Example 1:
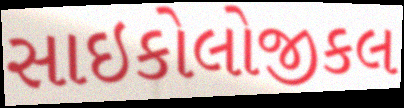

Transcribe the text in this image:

સાઇકોલોજીકલ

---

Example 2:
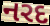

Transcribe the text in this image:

નરદ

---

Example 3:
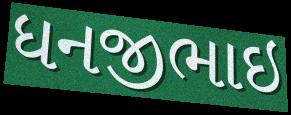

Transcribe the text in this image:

ધનજીભાઇ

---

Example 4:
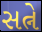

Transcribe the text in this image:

સત્ને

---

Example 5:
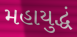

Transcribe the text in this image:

મહાયુદ્ધં